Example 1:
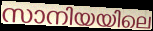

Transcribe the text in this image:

സാനിയയിലെ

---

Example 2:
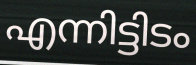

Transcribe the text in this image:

എന്നിട്ടിടം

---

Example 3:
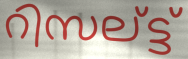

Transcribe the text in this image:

റിസല്ട്ട്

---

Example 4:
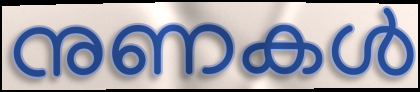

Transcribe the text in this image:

നുണകൾ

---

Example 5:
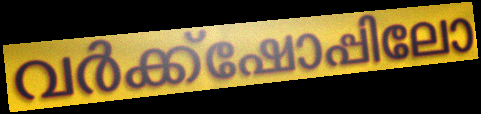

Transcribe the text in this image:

വർക്ക്ഷോപ്പിലോ